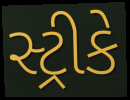
સ્ટ્રીકે